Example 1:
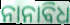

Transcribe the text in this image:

ନାନାବିଧ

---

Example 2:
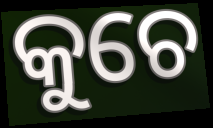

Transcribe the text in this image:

କୁଚେ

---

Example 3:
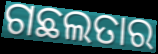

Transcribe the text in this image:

ଗଛଲତାର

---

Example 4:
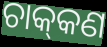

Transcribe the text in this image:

ଚାକ୍‌କଣ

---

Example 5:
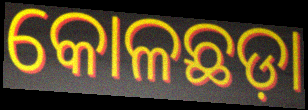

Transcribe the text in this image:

କୋଳଛଡ଼ା